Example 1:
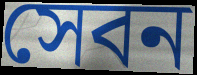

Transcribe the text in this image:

সেবন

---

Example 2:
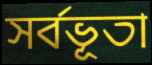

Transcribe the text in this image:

সর্বভূতা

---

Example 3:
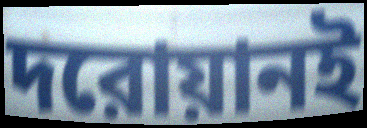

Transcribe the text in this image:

দরোয়ানই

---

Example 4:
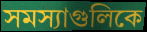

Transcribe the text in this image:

সমস্যাগুলিকে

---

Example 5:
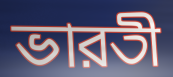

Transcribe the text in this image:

ভারতী